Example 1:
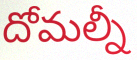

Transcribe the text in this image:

దోమల్నీ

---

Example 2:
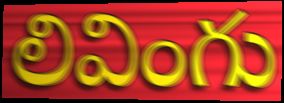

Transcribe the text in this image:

లివింగు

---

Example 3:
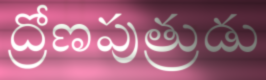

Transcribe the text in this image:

ద్రోణపుత్రుడు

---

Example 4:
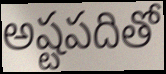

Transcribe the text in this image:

అష్టపదితో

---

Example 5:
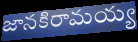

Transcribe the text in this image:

జానకిరామయ్య